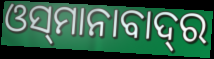
ଓସ୍‌ମାନାବାଦ୍‌ର